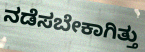
ನಡೆಸಬೇಕಾಗಿತ್ತು